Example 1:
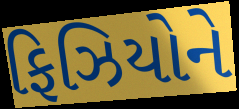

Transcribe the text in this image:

ફિઝિયોને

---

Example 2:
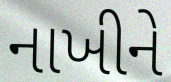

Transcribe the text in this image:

નાખીને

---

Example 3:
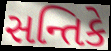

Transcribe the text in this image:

સન્તિકે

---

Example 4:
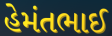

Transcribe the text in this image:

હેમંતભાઈ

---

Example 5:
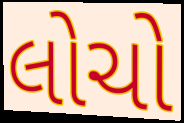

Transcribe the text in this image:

લોચો